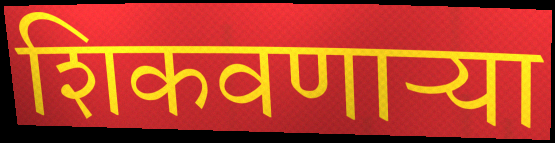
शिकवणाऱ्या